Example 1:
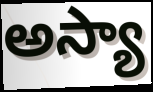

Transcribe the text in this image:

అస్యా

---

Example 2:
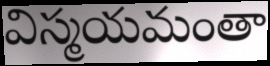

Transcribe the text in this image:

విస్మయమంతా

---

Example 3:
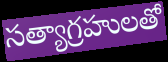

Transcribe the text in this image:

సత్యాగ్రహులతో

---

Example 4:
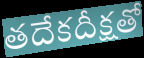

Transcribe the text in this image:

తదేకదీక్షతో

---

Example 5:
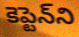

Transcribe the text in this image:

కెప్టెన్‌ని